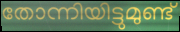
തോന്നിയിട്ടുമുണ്ട്